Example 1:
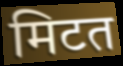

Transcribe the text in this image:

मिटत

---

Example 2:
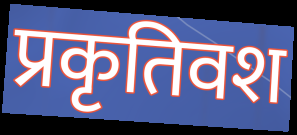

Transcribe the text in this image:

प्रकृतिवश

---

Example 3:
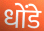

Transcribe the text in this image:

धोंडे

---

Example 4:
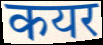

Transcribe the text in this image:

कयर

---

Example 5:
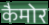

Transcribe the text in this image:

कैमोर